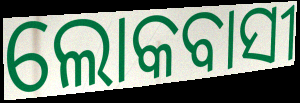
ଲୋକବାସୀ